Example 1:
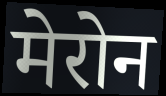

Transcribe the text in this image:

मेरोन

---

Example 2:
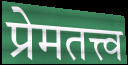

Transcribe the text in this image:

प्रेमतत्त्व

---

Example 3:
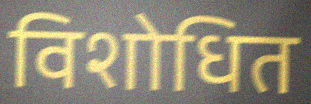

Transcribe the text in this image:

विशोधित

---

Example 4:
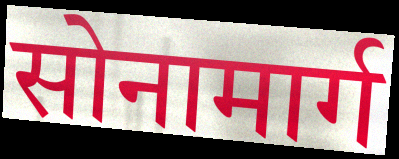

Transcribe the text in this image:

सोनामार्ग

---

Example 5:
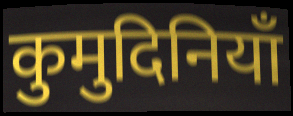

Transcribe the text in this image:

कुमुदिनियाँ